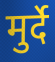
मुर्दे